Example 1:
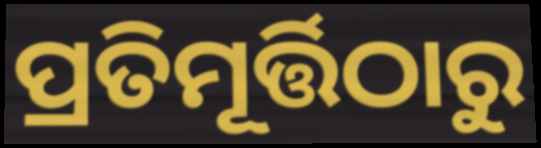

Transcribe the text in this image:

ପ୍ରତିମୂର୍ତ୍ତିଠାରୁ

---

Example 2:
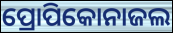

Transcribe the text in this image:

ପ୍ରୋପିକୋନାଜଲ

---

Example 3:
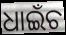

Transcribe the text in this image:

ଧାଇଁଚ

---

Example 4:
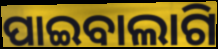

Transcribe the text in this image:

ପାଇବାଲାଗି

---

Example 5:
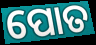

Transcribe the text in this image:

ପୋତ